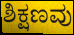
ಶಿಕ್ಷಣವು